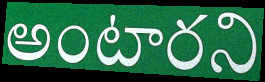
అంటారని